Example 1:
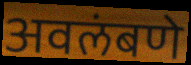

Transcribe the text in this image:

अवलंबणे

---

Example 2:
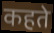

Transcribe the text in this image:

कहते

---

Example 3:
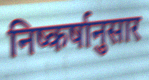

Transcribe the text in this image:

निष्कर्षानुसार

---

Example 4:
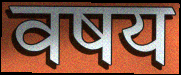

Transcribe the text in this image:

वषय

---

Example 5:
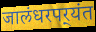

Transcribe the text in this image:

जालंधरपर्यंत